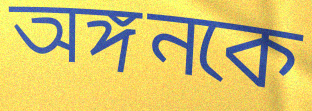
অঙ্গনকে